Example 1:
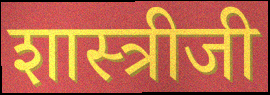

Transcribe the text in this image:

शास्त्रीजी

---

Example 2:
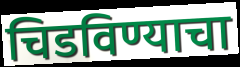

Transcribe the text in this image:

चिडविण्याचा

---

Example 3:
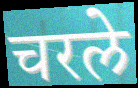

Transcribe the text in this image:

चरले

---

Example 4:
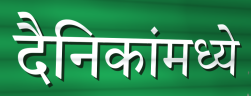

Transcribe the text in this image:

दैनिकांमध्ये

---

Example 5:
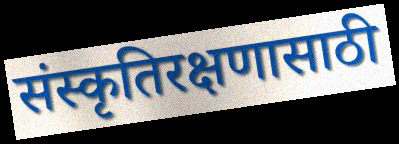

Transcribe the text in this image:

संस्कृतिरक्षणासाठी